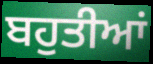
ਬਹੁਤੀਆਂ